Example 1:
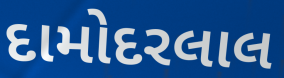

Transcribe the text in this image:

દામોદરલાલ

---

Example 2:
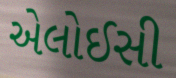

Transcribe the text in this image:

એલોઈસી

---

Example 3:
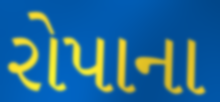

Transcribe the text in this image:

રોપાના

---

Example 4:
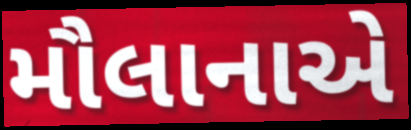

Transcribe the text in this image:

મૌલાનાએ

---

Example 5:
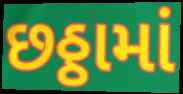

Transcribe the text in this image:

છઠ્ઠામાં